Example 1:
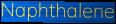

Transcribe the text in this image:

Naphthalene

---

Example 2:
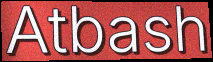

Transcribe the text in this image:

Atbash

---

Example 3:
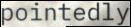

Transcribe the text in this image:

pointedly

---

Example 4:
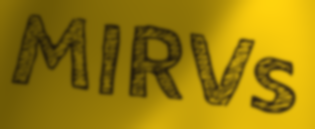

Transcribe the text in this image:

MIRVs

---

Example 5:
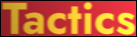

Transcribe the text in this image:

Tactics